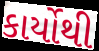
કાર્યોથી